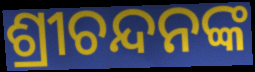
ଶ୍ରୀଚନ୍ଦନଙ୍କ